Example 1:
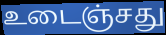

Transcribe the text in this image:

உடைஞ்சது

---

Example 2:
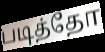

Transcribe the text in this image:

படித்தோ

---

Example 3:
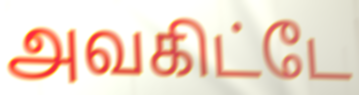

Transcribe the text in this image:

அவகிட்டே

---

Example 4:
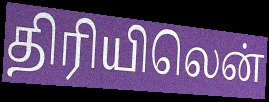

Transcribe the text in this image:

திரியிலென்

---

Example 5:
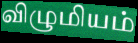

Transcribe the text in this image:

விழுமியம்